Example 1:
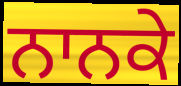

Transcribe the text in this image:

ਨਾਨਕੇ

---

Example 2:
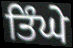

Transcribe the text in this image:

ਤਿੰਘੇ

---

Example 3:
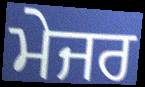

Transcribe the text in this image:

ਮੇਜਰ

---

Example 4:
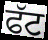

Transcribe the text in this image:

ਫੱਟ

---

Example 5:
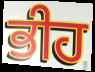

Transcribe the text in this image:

ਭੀਹ